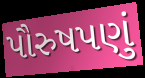
પૌરુષપણું